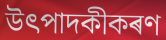
উৎপাদকীকৰণ